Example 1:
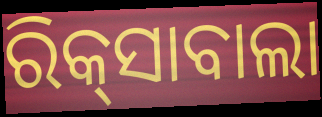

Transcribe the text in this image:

ରିକ୍‍ସାବାଲା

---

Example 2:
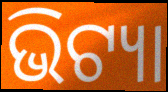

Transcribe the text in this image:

ଭିଟ୍ୟା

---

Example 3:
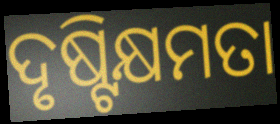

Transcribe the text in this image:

ଦୃଷ୍ଟିକ୍ଷମତା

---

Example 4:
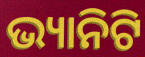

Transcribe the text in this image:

ଭ୍ୟାନିଟି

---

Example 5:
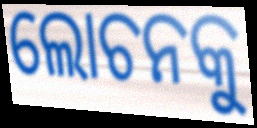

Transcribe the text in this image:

ଲୋଚନକୁ